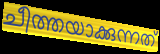
ചീത്തയാക്കുന്നത്